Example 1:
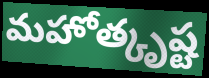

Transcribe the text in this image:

మహోత్కృష్ట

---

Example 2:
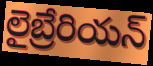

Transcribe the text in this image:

లైబ్రేరియన్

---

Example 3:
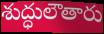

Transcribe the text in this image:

శుద్ధులౌతారు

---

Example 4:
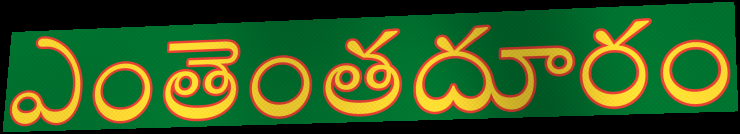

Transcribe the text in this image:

ఎంతెంతదూరం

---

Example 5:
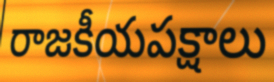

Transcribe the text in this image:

రాజకీయపక్షాలు